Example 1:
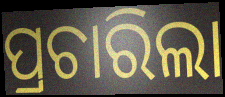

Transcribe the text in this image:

ପ୍ରଚାରିଲା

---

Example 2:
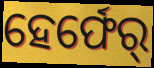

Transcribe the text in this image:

ହେର୍ଫେର୍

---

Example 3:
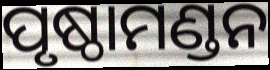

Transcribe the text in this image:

ପୃଷ୍ଠାମଣ୍ଡନ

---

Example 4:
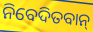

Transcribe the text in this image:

ନିବେଦିତବାନ୍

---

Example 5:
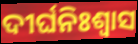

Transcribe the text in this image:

ଦୀର୍ଘନିଃଶ୍ବାସ